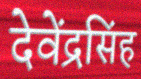
देवेंद्रसिंह